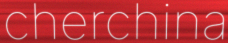
cherchina